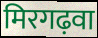
मिरगढ़वा